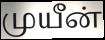
முயீன்